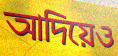
আদিয়েও